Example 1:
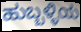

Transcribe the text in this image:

ಹುಬ್ಬಳ್ಳಿಯ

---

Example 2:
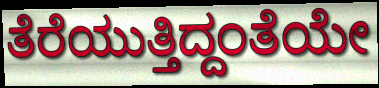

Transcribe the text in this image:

ತೆರೆಯುತ್ತಿದ್ದಂತೆಯೇ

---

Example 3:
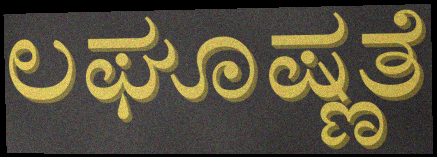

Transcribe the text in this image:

ಲಘೂಷ್ಣತೆ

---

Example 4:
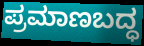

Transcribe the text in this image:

ಪ್ರಮಾಣಬದ್ಧ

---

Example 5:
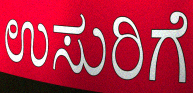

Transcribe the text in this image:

ಉಸುರಿಗೆ